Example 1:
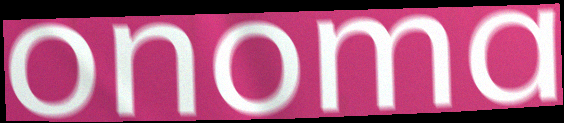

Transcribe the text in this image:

onoma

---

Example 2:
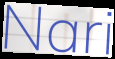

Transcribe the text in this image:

Nari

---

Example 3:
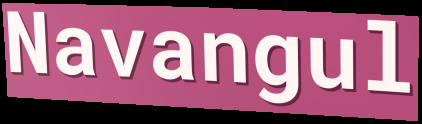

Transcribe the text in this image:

Navangul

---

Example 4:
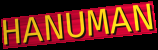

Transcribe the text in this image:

HANUMAN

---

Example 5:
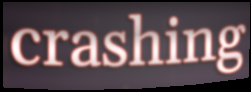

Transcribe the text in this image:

crashing